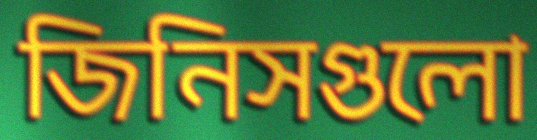
জিনিসগুলো